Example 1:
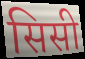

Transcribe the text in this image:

सिसी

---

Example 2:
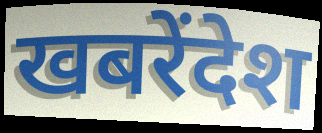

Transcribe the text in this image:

खबरेंदेश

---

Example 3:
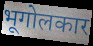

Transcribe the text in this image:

भूगोलकार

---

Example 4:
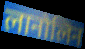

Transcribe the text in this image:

लानोलिन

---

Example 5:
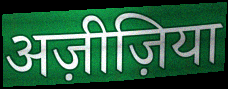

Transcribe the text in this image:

अज़ीज़िया